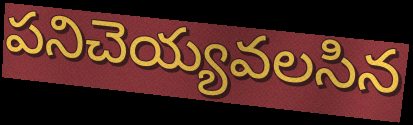
పనిచెయ్యవలసిన